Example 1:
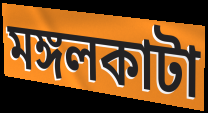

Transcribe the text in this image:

মঙ্গলকাটা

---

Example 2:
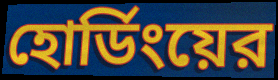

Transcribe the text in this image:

হোর্ডিংয়ের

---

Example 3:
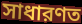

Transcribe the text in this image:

সাধারণত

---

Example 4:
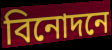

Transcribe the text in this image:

বিনোদনে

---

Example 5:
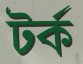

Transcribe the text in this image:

টর্ক